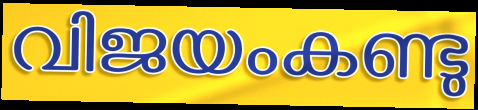
വിജയംകണ്ടു